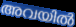
അവയിൽ